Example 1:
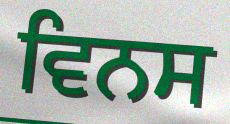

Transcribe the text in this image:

ਵਿਨਸ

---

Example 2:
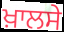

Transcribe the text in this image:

ਖ਼ਾਲਸੇ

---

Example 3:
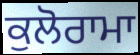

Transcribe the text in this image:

ਕੁਲੋਰਾਮਾ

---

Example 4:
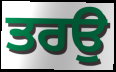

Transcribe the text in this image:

ਤਰਉ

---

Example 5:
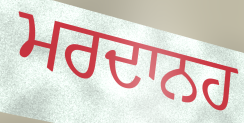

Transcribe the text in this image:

ਮਰਦਾਨਹ